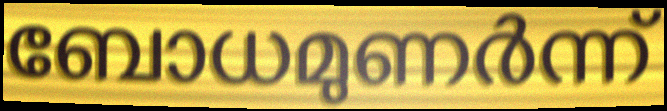
ബോധമുണർന്ന്